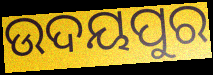
ଉଦୟପୁର